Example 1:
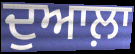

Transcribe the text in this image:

ਦੁਆਲ਼ਾ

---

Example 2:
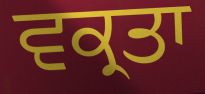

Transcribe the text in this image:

ਵਕ੍ਰਤਾ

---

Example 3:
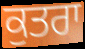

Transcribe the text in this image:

ਕੁਤਰਾ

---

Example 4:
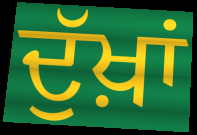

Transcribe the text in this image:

ਦੁੱਖ਼ਾਂ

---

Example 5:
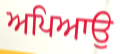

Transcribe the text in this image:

ਅਪਿਆਉ